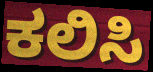
ಕಲಿಸಿ